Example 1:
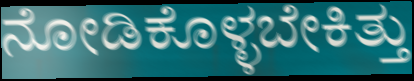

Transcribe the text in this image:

ನೋಡಿಕೊಳ್ಳಬೇಕಿತ್ತು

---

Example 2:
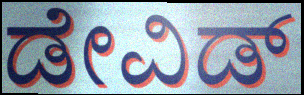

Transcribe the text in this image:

ಡೇವಿಡ್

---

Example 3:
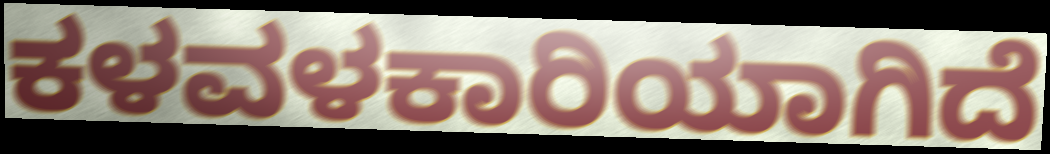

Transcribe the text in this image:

ಕಳವಳಕಾರಿಯಾಗಿದೆ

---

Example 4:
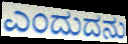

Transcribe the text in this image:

ಎಂದುದನು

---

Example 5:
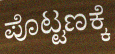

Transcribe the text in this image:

ಪೊಟ್ಟಣಕ್ಕೆ